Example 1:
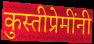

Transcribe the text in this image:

कुस्तीप्रेमींनी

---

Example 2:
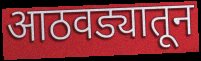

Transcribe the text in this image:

आठवड्यातून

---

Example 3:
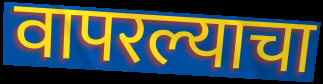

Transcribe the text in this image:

वापरल्याचा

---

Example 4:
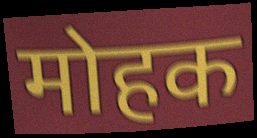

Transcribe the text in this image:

मोहक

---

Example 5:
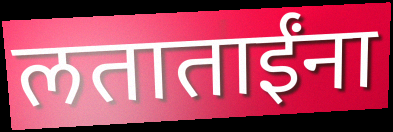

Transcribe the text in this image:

लताताईंना